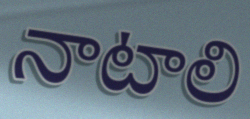
నాటాలి